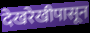
देखरेखीपासून